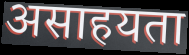
असाहयता